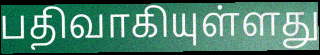
பதிவாகியுள்ளது